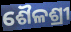
ଶୈଳଶ୍ରୀ